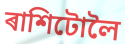
ৰাশিটোলৈ